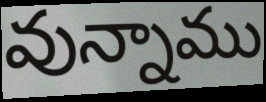
వున్నాము